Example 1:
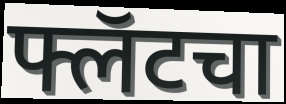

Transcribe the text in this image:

फ्लॅटचा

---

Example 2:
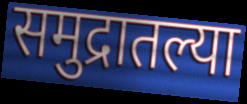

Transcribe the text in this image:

समुद्रातल्या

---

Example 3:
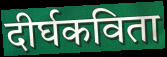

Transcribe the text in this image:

दीर्घकविता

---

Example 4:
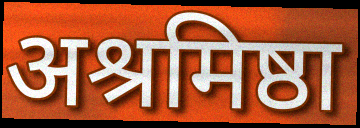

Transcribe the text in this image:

अश्रमिष्ठा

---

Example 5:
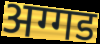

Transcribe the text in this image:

अग्गड